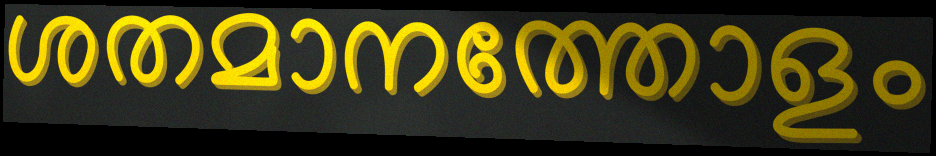
ശതമാനത്തോളം